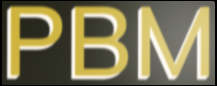
PBM